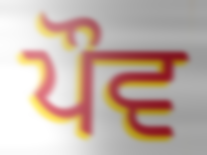
ਪੌਵ